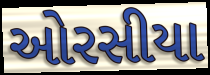
ઓરસીયા